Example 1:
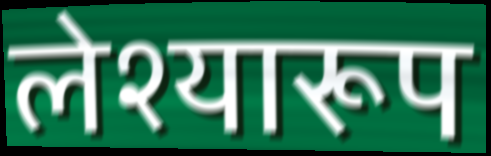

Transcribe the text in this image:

लेश्यारूप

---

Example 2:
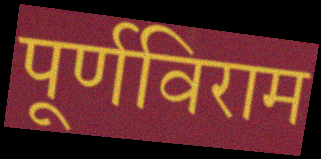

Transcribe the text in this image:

पूर्णविराम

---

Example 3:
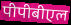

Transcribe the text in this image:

पीपीबीएल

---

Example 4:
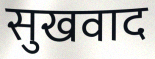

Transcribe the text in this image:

सुखवाद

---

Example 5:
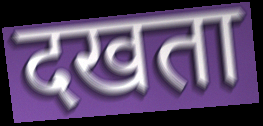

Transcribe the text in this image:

दखता